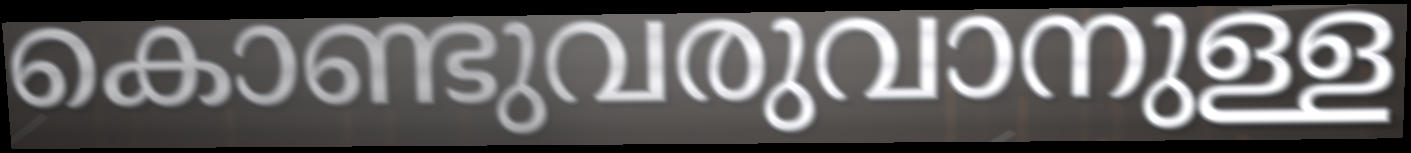
കൊണ്ടുവരുവാനുള്ള